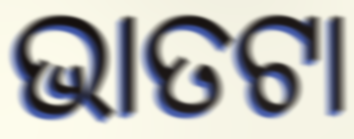
ଭାତଟା